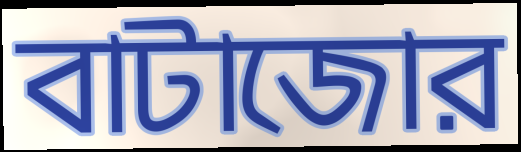
বাটাজোর